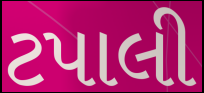
ટપાલી